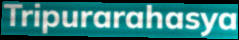
Tripurarahasya